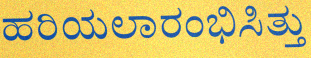
ಹರಿಯಲಾರಂಭಿಸಿತ್ತು